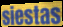
siestas